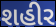
શહીર